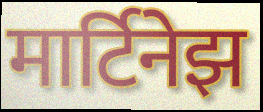
मार्टिनेझ